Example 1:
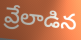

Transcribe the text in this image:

వ్రేలాడిన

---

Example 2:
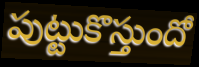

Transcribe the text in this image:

పుట్టుకొస్తుందో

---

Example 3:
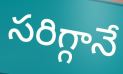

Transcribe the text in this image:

సరిగ్గానే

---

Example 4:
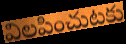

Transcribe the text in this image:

విలపించుటకు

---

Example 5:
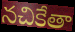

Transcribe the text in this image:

నచికేతా